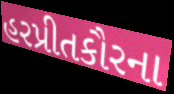
હરપ્રીતકૌરના